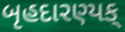
બૃહદારણ્યક્